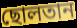
ছোলতান